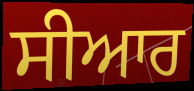
ਸੀਆਰ